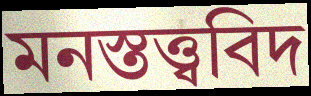
মনস্তত্ত্ববিদ